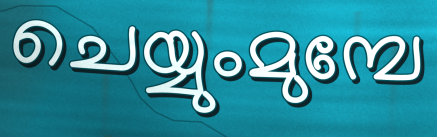
ചെയ്യുംമുമ്പേ